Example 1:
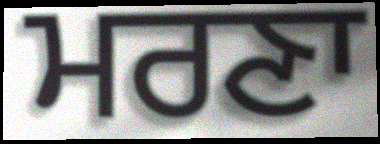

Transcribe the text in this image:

ਮਰਣਾ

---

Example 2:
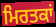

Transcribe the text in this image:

ਮਿਰਤਕਾਂ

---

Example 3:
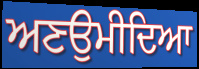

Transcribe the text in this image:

ਅਣਉਮੀਦਿਆ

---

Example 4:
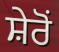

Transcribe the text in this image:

ਸ਼ੇਰੋਂ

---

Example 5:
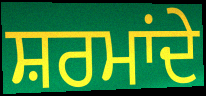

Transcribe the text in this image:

ਸ਼ਰਮਾਂਦੇ